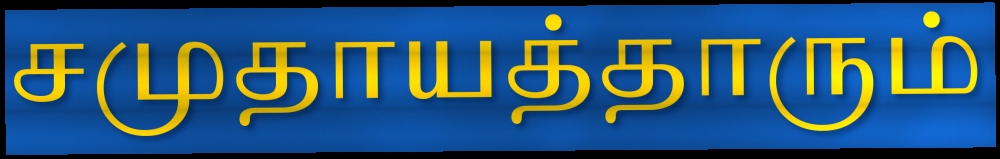
சமுதாயத்தாரும்